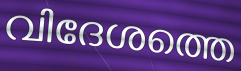
വിദേശത്തെ